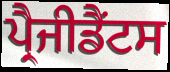
ਪ੍ਰੈਜੀਡੈਂਟਸ